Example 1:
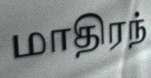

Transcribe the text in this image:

மாதிரந்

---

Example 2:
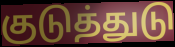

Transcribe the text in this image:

குடுத்துடு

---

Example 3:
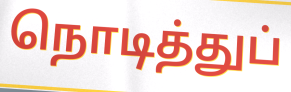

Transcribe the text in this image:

நொடித்துப்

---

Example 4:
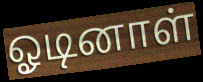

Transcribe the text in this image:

ஓடினாள்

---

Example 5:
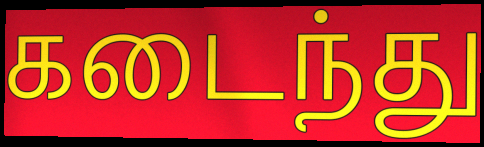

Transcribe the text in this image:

கடைந்து